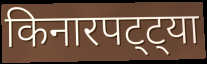
किनारपट्ट्या